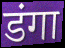
डंगा